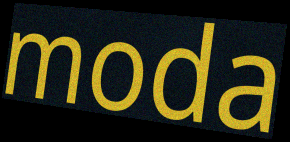
moda